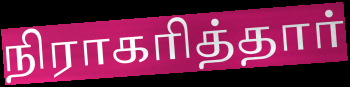
நிராகரித்தார்